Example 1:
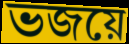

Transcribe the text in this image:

ভজয়ে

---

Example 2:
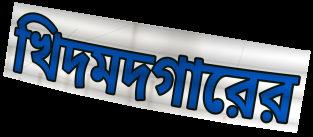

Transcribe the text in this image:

খিদমদগারের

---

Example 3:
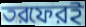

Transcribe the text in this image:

তরফেরই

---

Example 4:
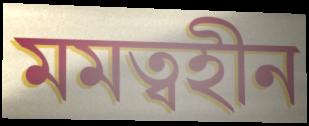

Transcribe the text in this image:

মমত্বহীন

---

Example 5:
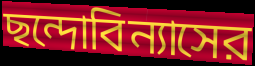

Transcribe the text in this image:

ছন্দোবিন্যাসের